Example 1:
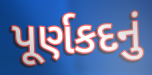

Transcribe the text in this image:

પૂર્ણકદનું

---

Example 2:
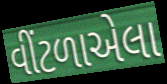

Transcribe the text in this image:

વીંટળાએલા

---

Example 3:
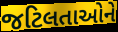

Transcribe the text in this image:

જટિલતાઓને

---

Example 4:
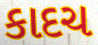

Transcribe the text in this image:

કાદચ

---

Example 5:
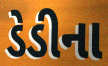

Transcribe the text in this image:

ડેડીના